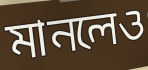
মানলেও